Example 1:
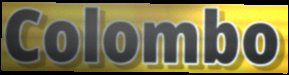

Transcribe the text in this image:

Colombo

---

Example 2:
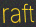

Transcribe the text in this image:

raft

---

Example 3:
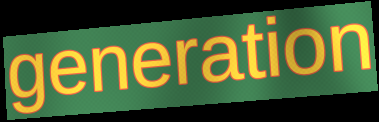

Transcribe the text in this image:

generation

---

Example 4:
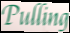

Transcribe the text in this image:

Pulling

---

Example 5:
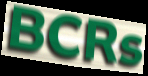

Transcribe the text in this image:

BCRs